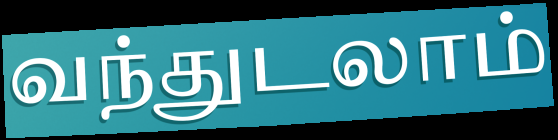
வந்துடலாம்